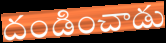
దండించాడు